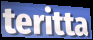
teritta